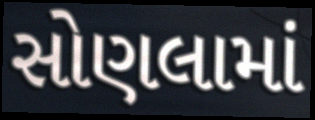
સોણલામાં